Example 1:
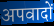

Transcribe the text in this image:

अपवादों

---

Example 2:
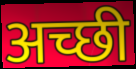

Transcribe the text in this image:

अच्छी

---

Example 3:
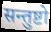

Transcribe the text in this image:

सन्तुष्टो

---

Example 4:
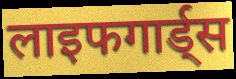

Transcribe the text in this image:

लाइफगार्ड्स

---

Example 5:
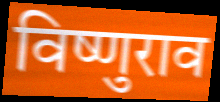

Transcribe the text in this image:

विष्णुराव